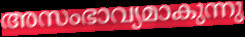
അസംഭാവ്യമാകുന്നു